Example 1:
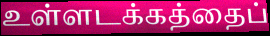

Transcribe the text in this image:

உள்ளடக்கத்தைப்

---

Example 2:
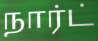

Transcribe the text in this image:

நார்ட்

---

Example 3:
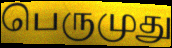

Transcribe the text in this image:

பெருமுது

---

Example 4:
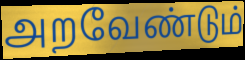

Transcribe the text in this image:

அறவேண்டும்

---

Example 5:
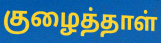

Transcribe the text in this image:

குழைத்தாள்